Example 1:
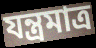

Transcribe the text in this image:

যন্ত্রমাত্র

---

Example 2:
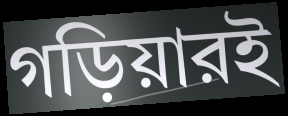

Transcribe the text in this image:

গড়িয়ারই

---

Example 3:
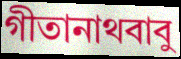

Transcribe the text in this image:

গীতানাথবাবু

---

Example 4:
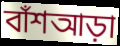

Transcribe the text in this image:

বাঁশআড়া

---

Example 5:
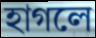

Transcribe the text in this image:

হাগলে